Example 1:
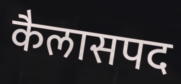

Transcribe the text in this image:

कैलासपद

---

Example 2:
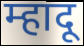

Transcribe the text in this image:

म्हादू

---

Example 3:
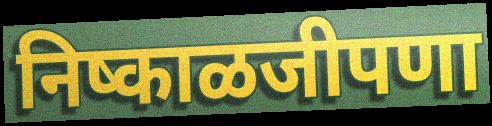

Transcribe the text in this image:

निष्काळजीपणा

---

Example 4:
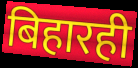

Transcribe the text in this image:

बिहारही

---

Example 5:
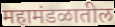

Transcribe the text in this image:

महामंडळातील